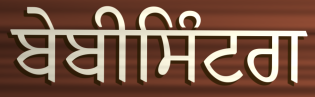
ਬੇਬੀਸਿੰਟਗ